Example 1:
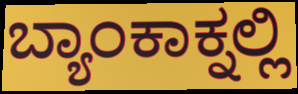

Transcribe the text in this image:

ಬ್ಯಾಂಕಾಕ್ನಲ್ಲಿ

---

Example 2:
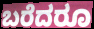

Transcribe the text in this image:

ಬರೆದರೂ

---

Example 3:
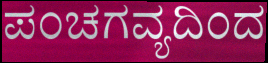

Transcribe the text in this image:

ಪಂಚಗವ್ಯದಿಂದ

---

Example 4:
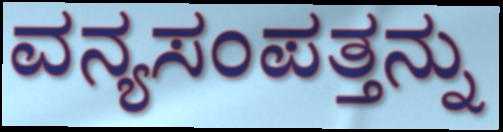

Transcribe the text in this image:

ವನ್ಯಸಂಪತ್ತನ್ನು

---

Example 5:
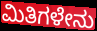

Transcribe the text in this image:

ಮಿತಿಗಳೇನು